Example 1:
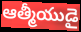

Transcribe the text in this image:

ఆత్మీయుడై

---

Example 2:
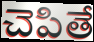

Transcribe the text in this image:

చెపితే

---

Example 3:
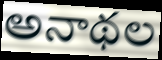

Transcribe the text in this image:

అనాథల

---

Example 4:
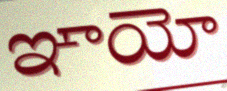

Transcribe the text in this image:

ఞాయో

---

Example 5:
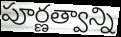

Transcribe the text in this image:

పూర్ణత్వాన్ని